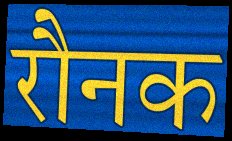
रौनक